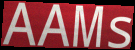
AAMs